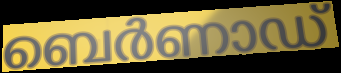
ബെർണാഡ്